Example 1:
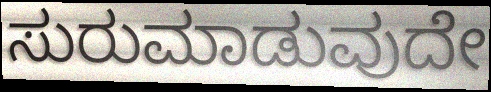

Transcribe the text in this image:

ಸುರುಮಾಡುವುದೇ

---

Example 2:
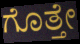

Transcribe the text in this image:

ಗೊತ್ತೇ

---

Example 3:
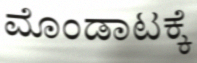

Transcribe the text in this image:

ಮೊಂಡಾಟಕ್ಕೆ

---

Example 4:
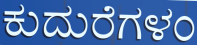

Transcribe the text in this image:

ಕುದುರೆಗಳಂ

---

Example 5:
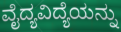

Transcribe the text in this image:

ವೈದ್ಯವಿದ್ಯೆಯನ್ನು